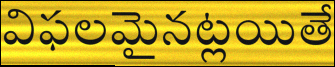
విఫలమైనట్లయితే